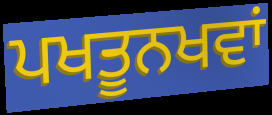
ਪਖਤੂਨਖਵਾਂ